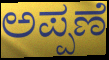
ಅಪ್ಪಣೆ